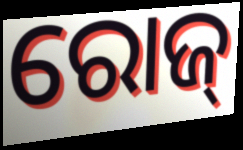
ରୋଜ୍